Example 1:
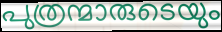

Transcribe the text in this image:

പുത്രന്മാരുടെയും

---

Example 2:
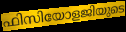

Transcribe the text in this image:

ഫിസിയോളജിയുടെ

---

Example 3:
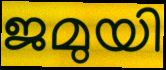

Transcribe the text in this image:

ജമുയി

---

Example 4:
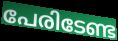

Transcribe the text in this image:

പേരിടേണ്ട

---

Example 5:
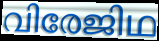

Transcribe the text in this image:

വിരേജിഥ